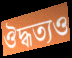
ঔদ্ধত্যও